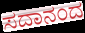
ಸದಾನಂದ